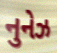
નુનેઝ